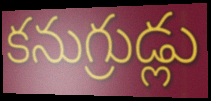
కనుగ్రుడ్లు